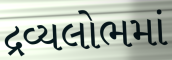
દ્રવ્યલોભમાં